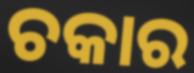
ଚକାର